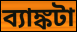
ব্যাঙ্কটা